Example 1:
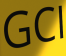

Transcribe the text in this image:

GCI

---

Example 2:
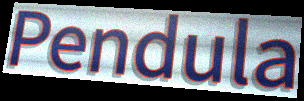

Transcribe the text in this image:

Pendula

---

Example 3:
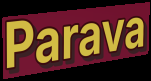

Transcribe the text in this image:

Parava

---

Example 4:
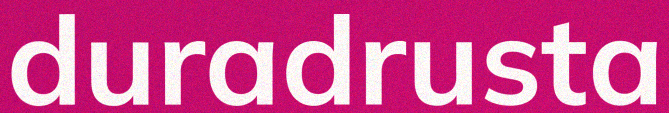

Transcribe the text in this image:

duradrusta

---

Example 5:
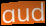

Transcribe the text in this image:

aud